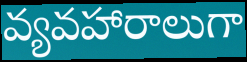
వ్యవహారాలుగా